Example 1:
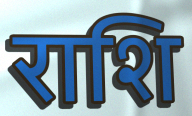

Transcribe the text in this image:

राशि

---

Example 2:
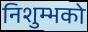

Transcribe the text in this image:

निशुम्भको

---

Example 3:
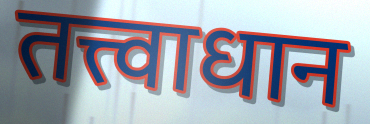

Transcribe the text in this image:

तत्त्वाधान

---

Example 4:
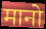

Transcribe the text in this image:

मानो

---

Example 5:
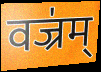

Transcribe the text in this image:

वज्र॑म्